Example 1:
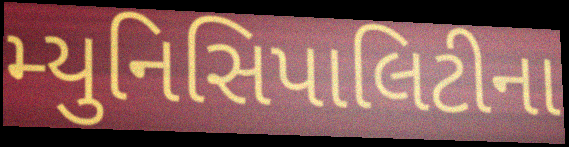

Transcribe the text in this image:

મ્યુનિસિપાલિટીના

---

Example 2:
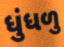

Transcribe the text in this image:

ધુંધળુ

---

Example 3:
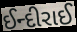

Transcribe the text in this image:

ઈન્દીરાઈ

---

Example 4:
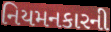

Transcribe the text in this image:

નિયમનકારની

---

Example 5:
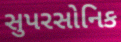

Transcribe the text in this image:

સુપરસોનિક